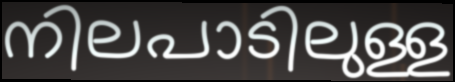
നിലപാടിലുള്ള